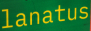
lanatus